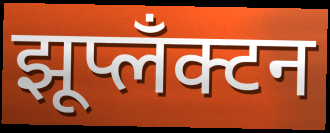
झूप्लँक्टन